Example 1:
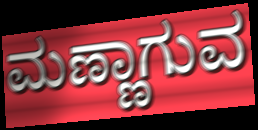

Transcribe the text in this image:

ಮಣ್ಣಾಗುವ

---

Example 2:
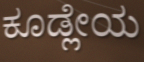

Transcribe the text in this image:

ಕೂಡ್ಲೇಯ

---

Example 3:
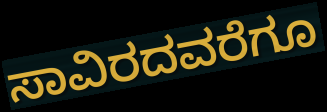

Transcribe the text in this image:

ಸಾವಿರದವರೆಗೂ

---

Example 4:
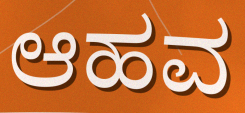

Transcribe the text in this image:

ಆಹವ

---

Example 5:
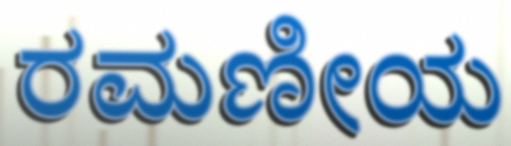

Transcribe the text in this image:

ರಮಣೀಯ